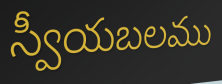
స్వీయబలము